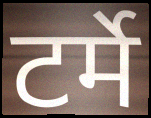
टर्मे